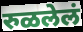
रुळलेलं